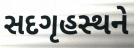
સદગૃહસ્થને